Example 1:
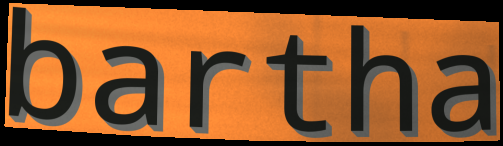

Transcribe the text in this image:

bartha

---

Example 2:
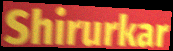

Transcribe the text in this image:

Shirurkar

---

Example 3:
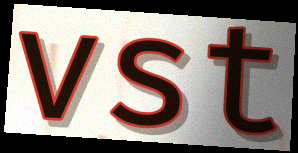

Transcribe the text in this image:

vst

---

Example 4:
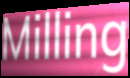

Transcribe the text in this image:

Milling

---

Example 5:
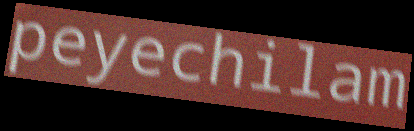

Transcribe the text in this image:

peyechilam